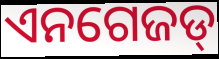
ଏନଗେଜଡ୍